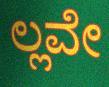
ಲ್ಲವೇ